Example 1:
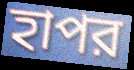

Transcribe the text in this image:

হাপর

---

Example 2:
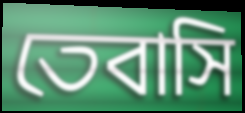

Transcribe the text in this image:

তেবাসি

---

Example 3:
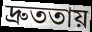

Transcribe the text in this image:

দ্রুততায়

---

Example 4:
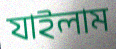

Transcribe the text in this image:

যাইলাম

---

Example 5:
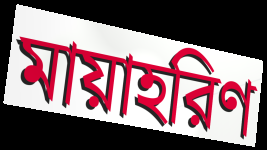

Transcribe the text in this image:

মায়াহরিণ